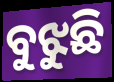
ବୁଝୁଛି